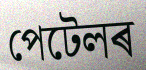
পেটেলৰ